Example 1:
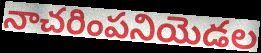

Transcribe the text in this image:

నాచరింపనియెడల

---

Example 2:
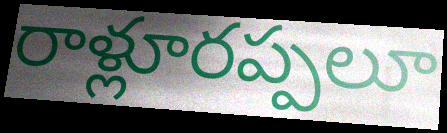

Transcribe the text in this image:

రాళ్లూరప్పలూ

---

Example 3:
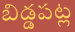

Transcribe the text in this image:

బిడ్డపట్ల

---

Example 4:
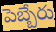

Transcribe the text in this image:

పెబ్బేరు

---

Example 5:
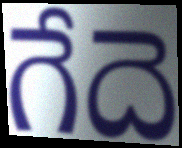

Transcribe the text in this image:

గేదె